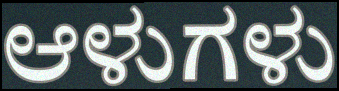
ಆಳುಗಳು